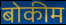
बोकीम